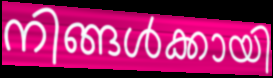
നിങ്ങൾക്കായി